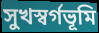
সুখস্বর্গভূমি